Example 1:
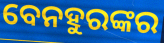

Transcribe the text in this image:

ବେନହୁରଙ୍କର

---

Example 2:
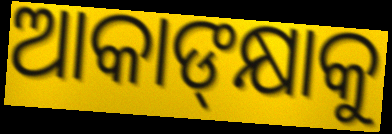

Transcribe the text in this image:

ଆକାଙ୍‍କ୍ଷାକୁ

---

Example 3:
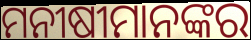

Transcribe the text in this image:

ମନୀଷୀମାନଙ୍କର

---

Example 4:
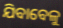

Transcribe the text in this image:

ଯିବାବେଳୁ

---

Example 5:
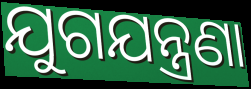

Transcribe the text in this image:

ଯୁଗଯନ୍ତ୍ରଣା